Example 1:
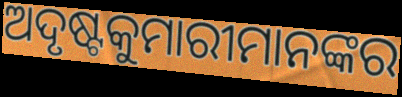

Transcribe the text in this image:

ଅଦୃଷ୍ଟକୁମାରୀମାନଙ୍କର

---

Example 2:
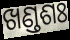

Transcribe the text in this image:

ଖଣ୍ଡଶଃ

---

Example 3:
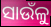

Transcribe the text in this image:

ସାଉଁଳୁ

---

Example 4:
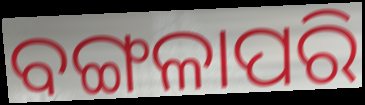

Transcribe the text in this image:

ବଙ୍ଗଳାପରି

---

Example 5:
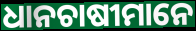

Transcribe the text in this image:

ଧାନଚାଷୀମାନେ